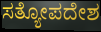
ಸತ್ಯೋಪದೇಶ